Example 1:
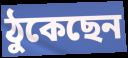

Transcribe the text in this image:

ঠুকেছেন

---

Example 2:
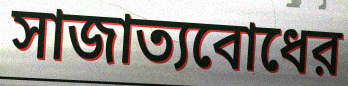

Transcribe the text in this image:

সাজাত্যবোধের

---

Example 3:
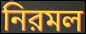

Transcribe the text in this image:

নিরমল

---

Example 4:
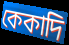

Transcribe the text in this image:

কেকাদি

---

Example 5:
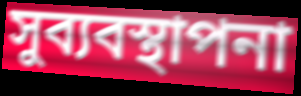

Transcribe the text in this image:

সুব্যবস্থাপনা